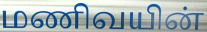
மணிவயின்